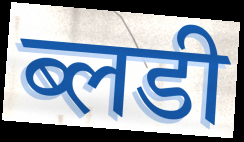
ब्लडी